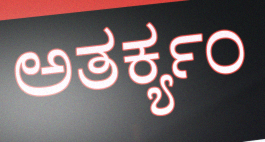
ಅತರ್ಕ್ಯಂ